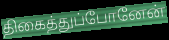
திகைத்துப்போனேன்